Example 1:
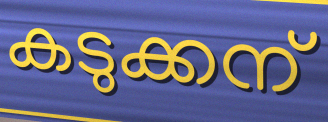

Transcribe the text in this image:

കടുക്കന്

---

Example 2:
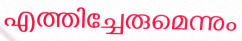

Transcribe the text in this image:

എത്തിച്ചേരുമെന്നും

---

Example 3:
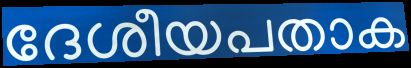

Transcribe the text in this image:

ദേശീയപതാക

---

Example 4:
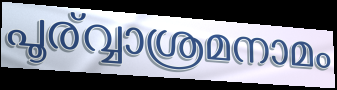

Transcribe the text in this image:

പൂര്വ്വാശ്രമനാമം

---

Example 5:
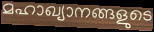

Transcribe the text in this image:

മഹാഖ്യാനങ്ങളുടെ